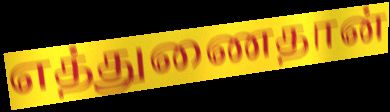
எத்துணைதான்